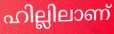
ഹില്ലിലാണ്